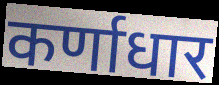
कर्णाधार